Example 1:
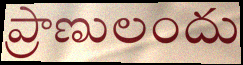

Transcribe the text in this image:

ప్రాణులందు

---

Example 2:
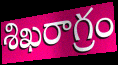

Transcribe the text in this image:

శిఖరాగ్రం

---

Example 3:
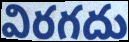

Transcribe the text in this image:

విరగదు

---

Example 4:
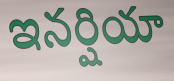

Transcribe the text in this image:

ఇనర్షియా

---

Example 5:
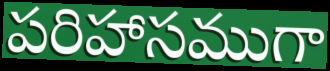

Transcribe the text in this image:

పరిహాసముగా